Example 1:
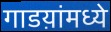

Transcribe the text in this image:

गाडय़ांमध्ये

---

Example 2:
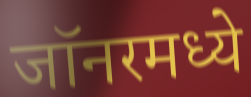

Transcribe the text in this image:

जॉनरमध्ये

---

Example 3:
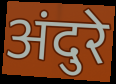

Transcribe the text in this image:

अंदुरे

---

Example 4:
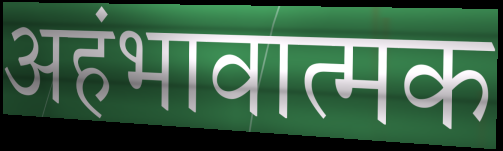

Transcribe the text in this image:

अहंभावात्मक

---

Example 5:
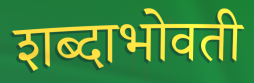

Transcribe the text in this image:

शब्दाभोवती